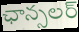
ఛాన్సలర్